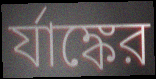
র্যাঙ্কের